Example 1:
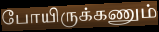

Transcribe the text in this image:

போயிருக்கணும்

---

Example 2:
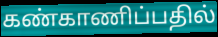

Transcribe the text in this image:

கண்காணிப்பதில்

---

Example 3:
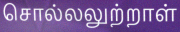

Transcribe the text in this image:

சொல்லலுற்றாள்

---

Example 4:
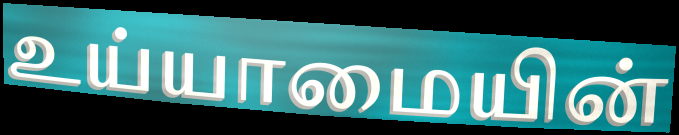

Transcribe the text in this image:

உய்யாமையின்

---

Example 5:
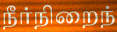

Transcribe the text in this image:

நீர்நிறைந்